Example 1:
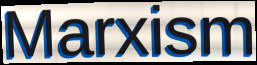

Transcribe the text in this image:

Marxism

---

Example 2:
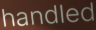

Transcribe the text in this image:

handled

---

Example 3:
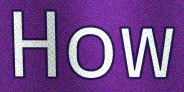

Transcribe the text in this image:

How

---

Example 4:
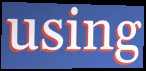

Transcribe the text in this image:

using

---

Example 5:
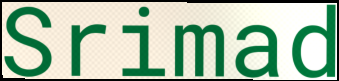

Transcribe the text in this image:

Srimad